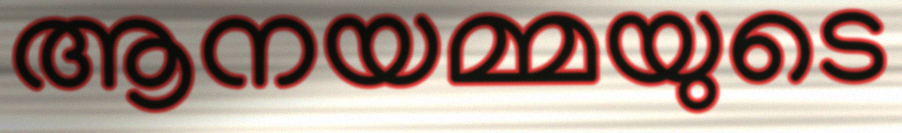
ആനയമ്മയുടെ